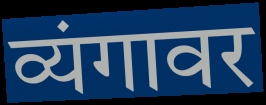
व्यंगावर